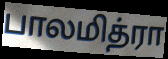
பாலமித்ரா